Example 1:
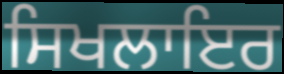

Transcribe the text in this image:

ਸਿਖਲਾਇਰ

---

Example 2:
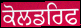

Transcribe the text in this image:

ਕੋਲਡਰਿਫ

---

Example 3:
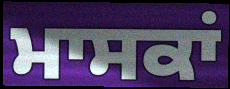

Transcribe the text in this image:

ਮਾਸਕਾਂ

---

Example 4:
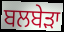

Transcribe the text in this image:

ਬਲਬੇਡ਼ਾ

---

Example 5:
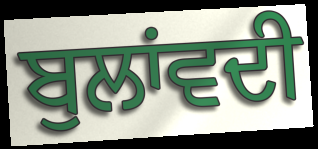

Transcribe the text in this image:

ਬੁਲਾਂਵਦੀ